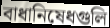
বাধানিষেধগুলি